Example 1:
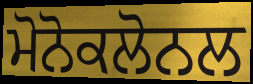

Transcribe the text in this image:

ਮੋਨੋਕਲੋਨਲ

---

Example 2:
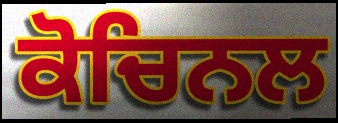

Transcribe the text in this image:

ਕੋਚਿਨਲ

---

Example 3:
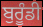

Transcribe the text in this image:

ਬੁਰੂੰਡੀ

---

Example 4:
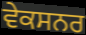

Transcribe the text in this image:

ਵੇਕਸਨਰ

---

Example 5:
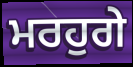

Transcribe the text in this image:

ਮਰਹੁਗੇ